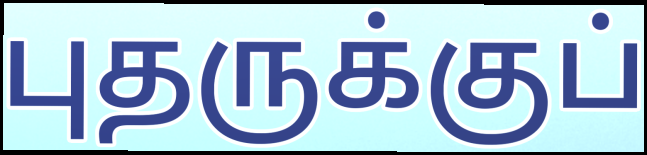
புதருக்குப்